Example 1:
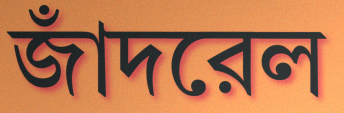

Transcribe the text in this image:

জাঁদরেল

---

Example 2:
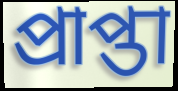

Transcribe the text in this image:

প্রাপ্তা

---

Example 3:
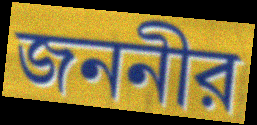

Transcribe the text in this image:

জননীর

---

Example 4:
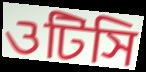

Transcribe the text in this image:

ওটিসি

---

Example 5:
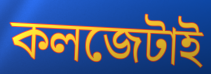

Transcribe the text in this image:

কলজেটাই